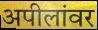
अपीलांवर